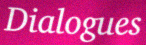
Dialogues